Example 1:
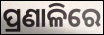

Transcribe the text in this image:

ପ୍ରଣାଳିରେ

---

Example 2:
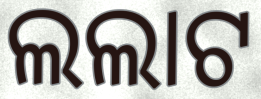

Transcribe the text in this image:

ଲଲାଟ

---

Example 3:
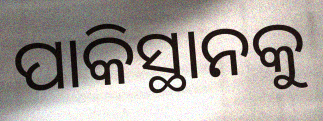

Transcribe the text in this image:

ପାକିସ୍ଥାନକୁ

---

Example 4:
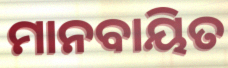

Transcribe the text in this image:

ମାନବାୟିତ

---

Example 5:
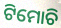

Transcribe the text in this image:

ଟିମୋଚି